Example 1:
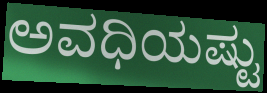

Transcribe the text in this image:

ಅವಧಿಯಷ್ಟು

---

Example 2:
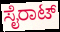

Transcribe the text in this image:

ಸೈರಾಟ್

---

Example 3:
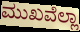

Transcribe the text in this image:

ಮುಖವೆಲ್ಲಾ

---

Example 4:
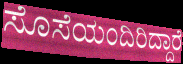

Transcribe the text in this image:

ಸೊಸೆಯಂದಿರಿದ್ದಾರೆ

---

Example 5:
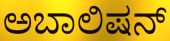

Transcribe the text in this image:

ಅಬಾಲಿಷನ್